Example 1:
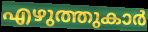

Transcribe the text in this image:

എഴുത്തുകാർ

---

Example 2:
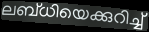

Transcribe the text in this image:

ലബ്ധിയെക്കുറിച്ച്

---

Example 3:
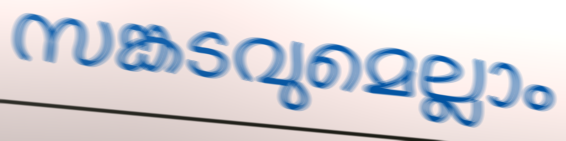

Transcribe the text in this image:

സങ്കടവുമെല്ലാം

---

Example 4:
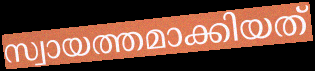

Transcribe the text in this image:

സ്വായത്തമാക്കിയത്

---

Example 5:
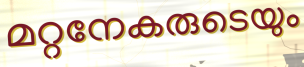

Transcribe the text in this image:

മറ്റനേകരുടെയും